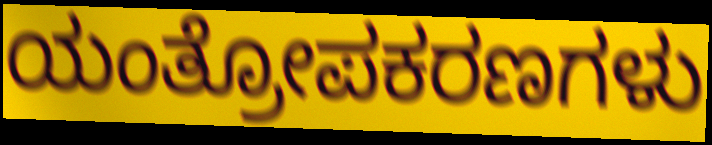
ಯಂತ್ರೋಪಕರಣಗಳು